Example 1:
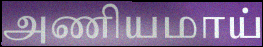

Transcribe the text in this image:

அணியமாய்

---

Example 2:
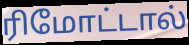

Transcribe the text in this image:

ரிமோட்டால்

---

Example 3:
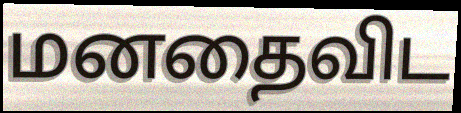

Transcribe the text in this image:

மனதைவிட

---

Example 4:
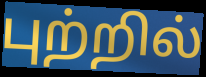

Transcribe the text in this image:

புற்றில்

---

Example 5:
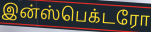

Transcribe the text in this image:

இன்ஸ்பெக்டரோ